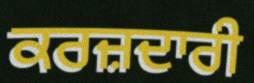
ਕਰਜ਼ਦਾਰੀ